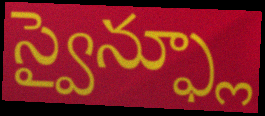
స్వైన్ఫ్లూ